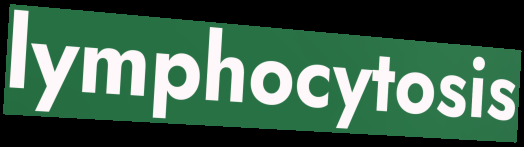
lymphocytosis